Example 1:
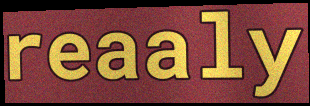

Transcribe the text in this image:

reaaly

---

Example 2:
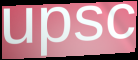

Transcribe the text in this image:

upsc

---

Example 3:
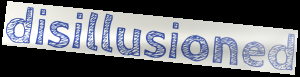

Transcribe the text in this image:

disillusioned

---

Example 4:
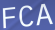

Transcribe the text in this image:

FCA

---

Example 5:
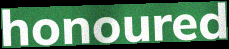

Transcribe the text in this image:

honoured